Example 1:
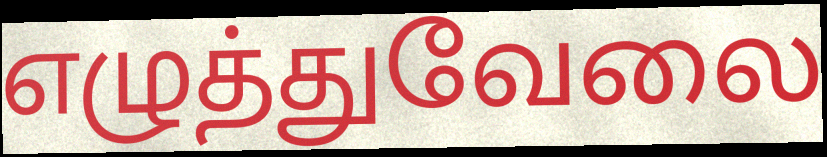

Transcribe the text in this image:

எழுத்துவேலை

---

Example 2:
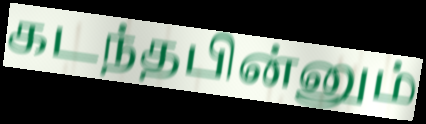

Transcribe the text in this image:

கடந்தபின்னும்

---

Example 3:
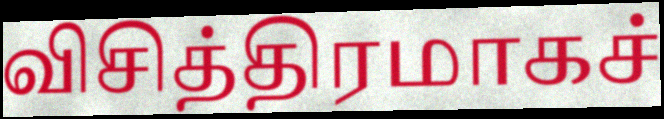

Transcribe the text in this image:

விசித்திரமாகச்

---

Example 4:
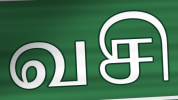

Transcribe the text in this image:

வசி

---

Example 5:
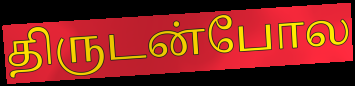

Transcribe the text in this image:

திருடன்போல